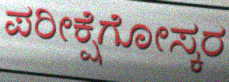
ಪರೀಕ್ಷೆಗೋಸ್ಕರ